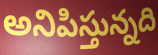
అనిపిస్తున్నది